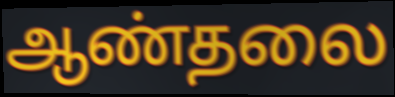
ஆண்தலை